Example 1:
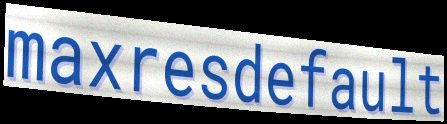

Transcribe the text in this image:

maxresdefault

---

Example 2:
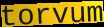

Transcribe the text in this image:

torvum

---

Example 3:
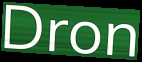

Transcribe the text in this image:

Dron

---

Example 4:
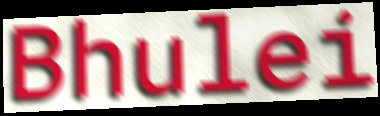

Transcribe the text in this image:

Bhulei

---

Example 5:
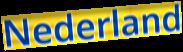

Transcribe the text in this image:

Nederland